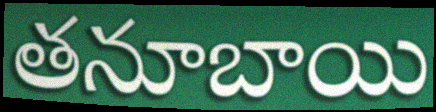
తనూబాయి